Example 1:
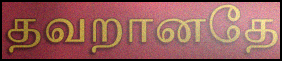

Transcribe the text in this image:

தவறானதே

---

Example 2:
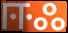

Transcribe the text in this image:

ஈஃ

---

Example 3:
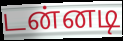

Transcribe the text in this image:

டன்னடி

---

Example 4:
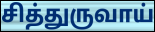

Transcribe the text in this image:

சித்துருவாய்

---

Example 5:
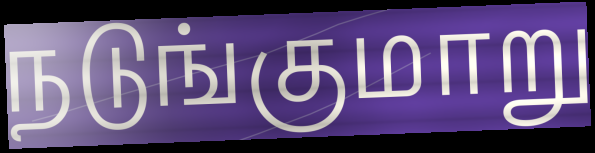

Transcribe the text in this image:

நடுங்குமாறு